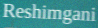
Reshimgani